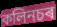
কলিনচৰ